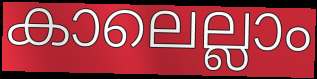
കാലെല്ലാം